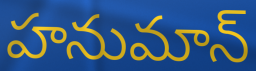
హనుమాన్